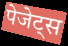
पेजेट्स